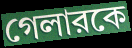
গেলারকে